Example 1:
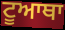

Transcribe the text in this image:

ਟੂਆਥਾ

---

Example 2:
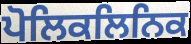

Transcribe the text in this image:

ਪੋਲਿਕਲਿਨਿਕ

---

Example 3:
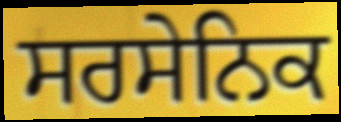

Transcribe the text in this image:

ਸਰਸੇਨਿਕ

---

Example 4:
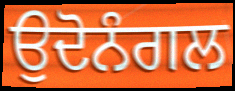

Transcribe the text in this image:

ਉਦੋਨੰਗਲ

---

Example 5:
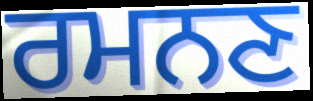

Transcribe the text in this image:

ਰਮਨਣ